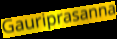
Gauriprasanna